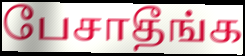
பேசாதீங்க